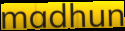
madhun